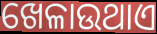
ଖେଳାଉଥାଏ